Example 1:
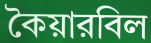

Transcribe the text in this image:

কৈয়ারবিল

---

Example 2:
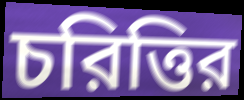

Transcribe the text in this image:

চরিত্তির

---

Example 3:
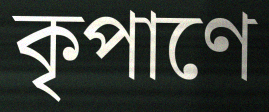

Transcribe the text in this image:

কৃপাণে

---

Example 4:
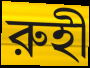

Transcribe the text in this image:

রুহী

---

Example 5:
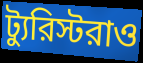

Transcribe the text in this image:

ট্যুরিস্টরাও